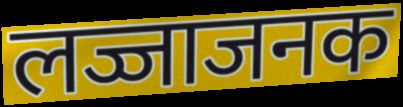
लज्जाजनक